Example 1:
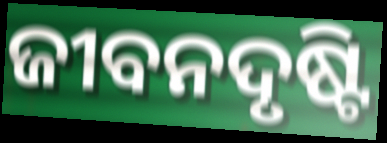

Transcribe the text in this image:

ଜୀବନଦୃଷ୍ଟି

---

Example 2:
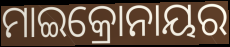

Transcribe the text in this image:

ମାଇକ୍ରୋନାୟର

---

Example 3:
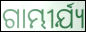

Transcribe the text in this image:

ଗାମ୍ଭୀର୍ଯ୍ୟ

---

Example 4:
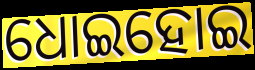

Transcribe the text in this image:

ଧୋଇହୋଇ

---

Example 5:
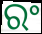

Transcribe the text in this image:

ରଂ